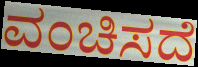
ವಂಚಿಸದೆ